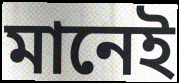
মানেই